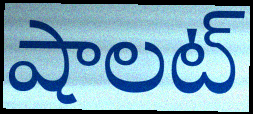
షాలట్